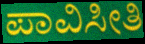
ಪಾವಿಸೀತಿ